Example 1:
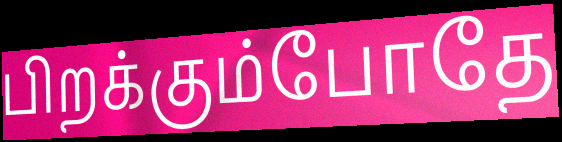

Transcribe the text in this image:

பிறக்கும்போதே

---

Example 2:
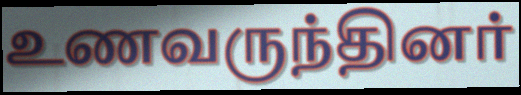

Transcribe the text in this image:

உணவருந்தினர்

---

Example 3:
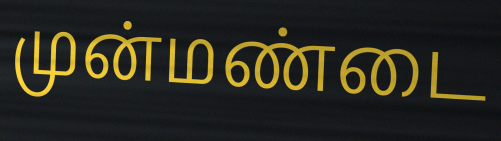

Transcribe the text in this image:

முன்மண்டை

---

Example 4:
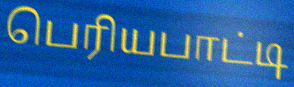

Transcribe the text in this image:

பெரியபாட்டி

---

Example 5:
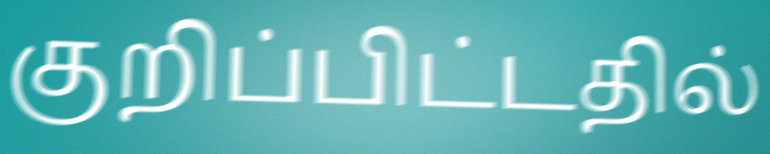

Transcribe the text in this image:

குறிப்பிட்டதில்